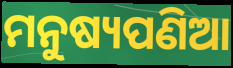
ମନୁଷ୍ୟପଣିଆ